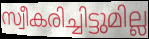
സ്വീകരിച്ചിട്ടുമില്ല